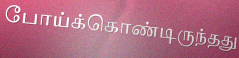
போய்க்கொண்டிருந்தது